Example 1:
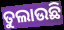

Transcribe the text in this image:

ତୁଲାଉଛି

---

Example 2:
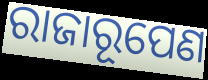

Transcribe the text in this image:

ରାଜାରୂପେଣ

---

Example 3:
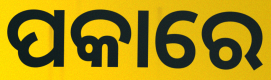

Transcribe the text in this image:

ପକାରେ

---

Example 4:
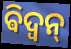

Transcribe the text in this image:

ଵିଦ୍ଵନ୍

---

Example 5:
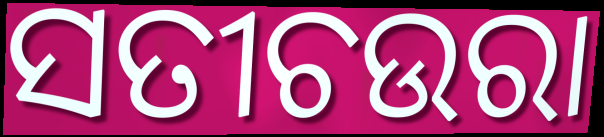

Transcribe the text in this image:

ସତୀଚଉରା